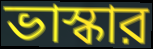
ভাস্কার